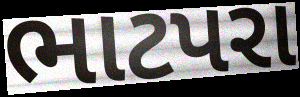
ભાટપરા